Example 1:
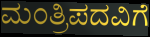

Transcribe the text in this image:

ಮಂತ್ರಿಪದವಿಗೆ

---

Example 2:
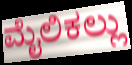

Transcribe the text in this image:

ಮೈಲಿಕಲ್ಲು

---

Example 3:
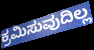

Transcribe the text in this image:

ಕ್ರಮಿಸುವುದಿಲ್ಲ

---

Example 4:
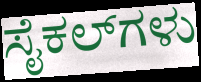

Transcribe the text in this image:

ಸೈಕಲ್‌ಗಳು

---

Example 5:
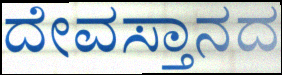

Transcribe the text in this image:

ದೇವಸ್ತಾನದ